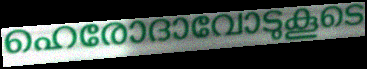
ഹെരോദാവോടുകൂടെ